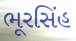
ભૂરસિંહ